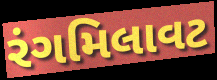
રંગમિલાવટ